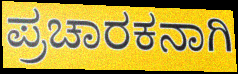
ಪ್ರಚಾರಕನಾಗಿ